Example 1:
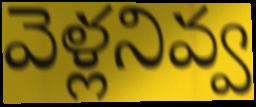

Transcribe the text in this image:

వెళ్లనివ్వ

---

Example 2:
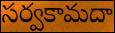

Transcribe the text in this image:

సర్వకామదా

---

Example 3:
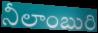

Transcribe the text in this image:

నీలాంబురి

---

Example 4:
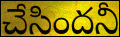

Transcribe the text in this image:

చేసిందనీ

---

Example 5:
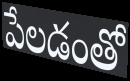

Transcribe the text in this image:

పేలడంతో